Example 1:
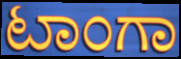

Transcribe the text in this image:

ಟಾಂಗಾ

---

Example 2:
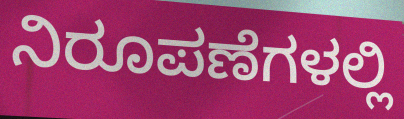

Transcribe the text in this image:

ನಿರೂಪಣೆಗಳಲ್ಲಿ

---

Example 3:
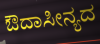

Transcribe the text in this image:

ಔದಾಸೀನ್ಯದ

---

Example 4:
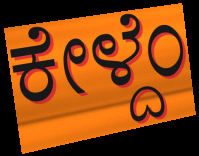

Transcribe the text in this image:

ಕೇಳ್ದೆಂ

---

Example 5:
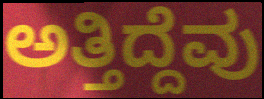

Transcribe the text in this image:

ಅತ್ತಿದ್ದೆವು